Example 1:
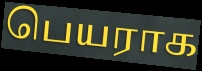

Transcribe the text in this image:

பெயராக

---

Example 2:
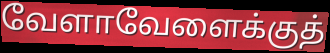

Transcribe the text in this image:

வேளாவேளைக்குத்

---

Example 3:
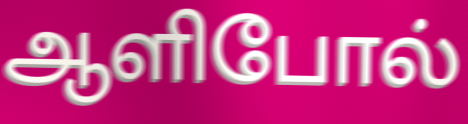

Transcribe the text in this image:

ஆளிபோல்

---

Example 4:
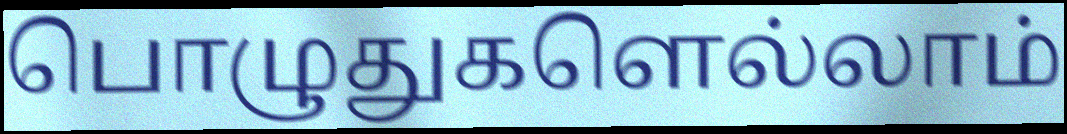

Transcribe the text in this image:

பொழுதுகளெல்லாம்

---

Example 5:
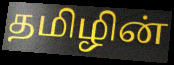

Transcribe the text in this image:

தமிழின்